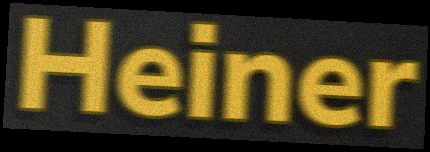
Heiner